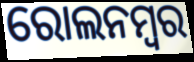
ରୋଲନମ୍ବର